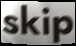
skip